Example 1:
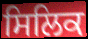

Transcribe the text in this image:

ਸਿਲਿਕ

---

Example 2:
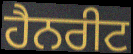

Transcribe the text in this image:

ਹੈਨਰੀਟ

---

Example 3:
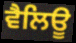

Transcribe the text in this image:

ਵੈਲਿਊ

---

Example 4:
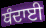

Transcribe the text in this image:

ਥੰਦਾਈ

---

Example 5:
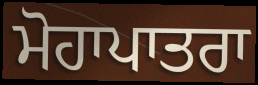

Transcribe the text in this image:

ਮੋਹਾਪਾਤਰਾ